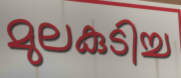
മുലകുടിച്ച